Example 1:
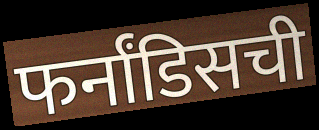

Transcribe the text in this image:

फर्नांडिसची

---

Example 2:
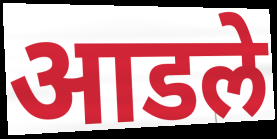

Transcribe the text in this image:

आडले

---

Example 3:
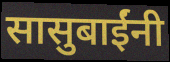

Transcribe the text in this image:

सासुबाईंनी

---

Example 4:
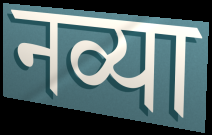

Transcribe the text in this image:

नव्या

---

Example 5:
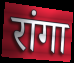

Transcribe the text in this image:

रांगा